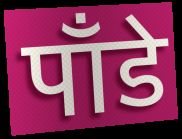
पाँडे